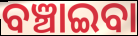
ବଞ୍ଚାଇବା